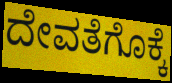
ದೇವತೆಗೊಕ್ಕೆ